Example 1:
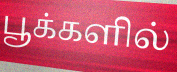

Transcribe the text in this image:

பூக்களில்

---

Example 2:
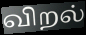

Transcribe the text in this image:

விறல்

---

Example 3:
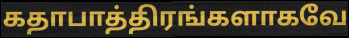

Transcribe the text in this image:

கதாபாத்திரங்களாகவே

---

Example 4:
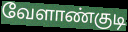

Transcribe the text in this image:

வேளாண்குடி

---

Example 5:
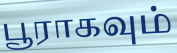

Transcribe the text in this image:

பூராகவும்